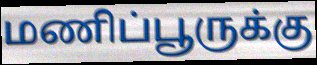
மணிப்பூருக்கு